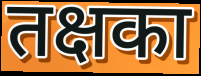
तक्षका